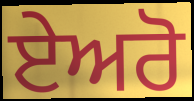
ਏਅਰੋ